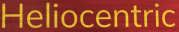
Heliocentric